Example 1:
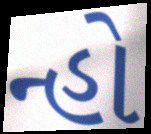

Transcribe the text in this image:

ન્હો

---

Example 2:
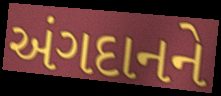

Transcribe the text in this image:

અંગદાનને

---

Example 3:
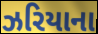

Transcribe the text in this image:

ઝરિયાના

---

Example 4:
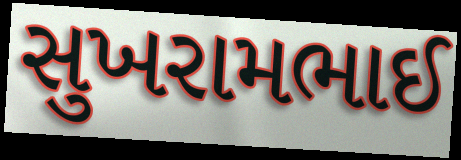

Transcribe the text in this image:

સુખરામભાઈ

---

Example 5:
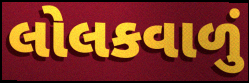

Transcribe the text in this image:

લોલકવાળું